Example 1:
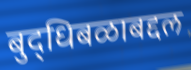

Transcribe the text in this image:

बुद्धिबळाबद्दल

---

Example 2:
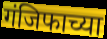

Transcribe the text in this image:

गंजिफाच्या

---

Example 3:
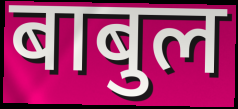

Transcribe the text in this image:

बाबुल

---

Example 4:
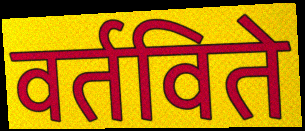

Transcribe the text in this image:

वर्तविते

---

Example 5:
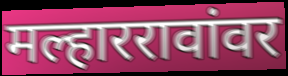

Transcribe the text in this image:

मल्हाररावांवर